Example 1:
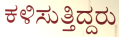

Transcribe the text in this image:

ಕಳಿಸುತ್ತಿದ್ದರು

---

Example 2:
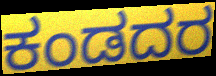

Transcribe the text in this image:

ಕಂಡದರ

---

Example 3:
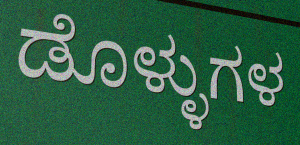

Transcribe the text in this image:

ಡೊಳ್ಳುಗಳ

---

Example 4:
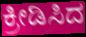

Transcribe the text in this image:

ಕ್ರೀಡಿಸಿದ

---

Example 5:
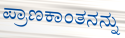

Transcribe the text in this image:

ಪ್ರಾಣಕಾಂತನನ್ನು